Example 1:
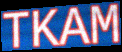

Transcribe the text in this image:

TKAM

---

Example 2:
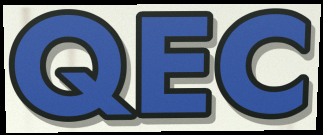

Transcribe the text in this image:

QEC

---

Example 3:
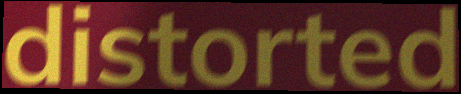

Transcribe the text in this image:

distorted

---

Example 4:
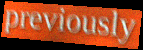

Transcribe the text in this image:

previously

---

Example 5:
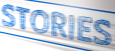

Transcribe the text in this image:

STORIES